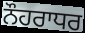
ਨੌਹਰਾਧਰ